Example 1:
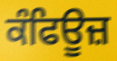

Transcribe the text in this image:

ਕੰਫਿਊਜ਼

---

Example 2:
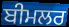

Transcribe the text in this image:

ਬੀਮਲਰ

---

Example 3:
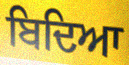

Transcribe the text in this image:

ਬਿਦਿਆ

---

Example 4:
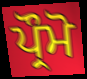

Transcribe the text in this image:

ਪ੍ਰੌਮੋ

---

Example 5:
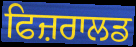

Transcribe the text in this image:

ਫਿਜ਼ਰਾਲਡ